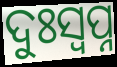
ଦୁଃସ୍ଵପ୍ନ